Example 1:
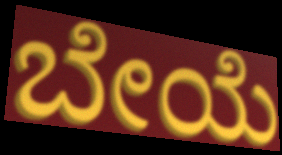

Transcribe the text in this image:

ಬೇಯೆ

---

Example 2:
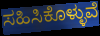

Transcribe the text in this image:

ಸಹಿಸಿಕೊಳ್ಳುವೆ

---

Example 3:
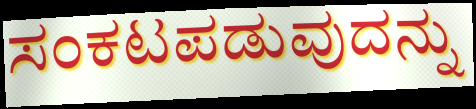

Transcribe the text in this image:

ಸಂಕಟಪಡುವುದನ್ನು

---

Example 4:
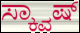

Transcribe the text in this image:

ಸ್ಕ್ವಾಷ್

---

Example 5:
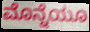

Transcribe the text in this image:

ಮೊನ್ನೆಯೂ